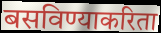
बसविण्याकरिता